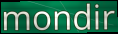
mondir